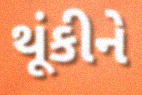
થૂંકીને